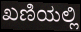
ಖಣಿಯಲ್ಲಿ